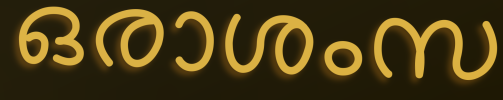
ഒരാശംസ